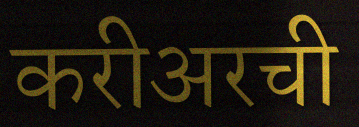
करीअरची